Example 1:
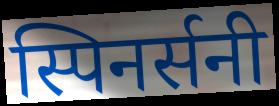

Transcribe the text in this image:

स्पिनर्सनी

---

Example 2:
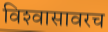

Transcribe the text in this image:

विश्वासावरच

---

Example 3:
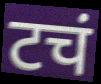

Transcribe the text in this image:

टचं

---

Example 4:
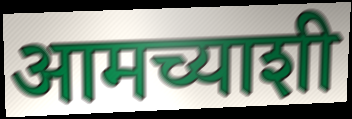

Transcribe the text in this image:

आमच्याशी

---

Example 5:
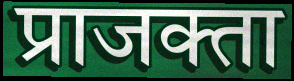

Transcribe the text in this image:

प्राजक्ता